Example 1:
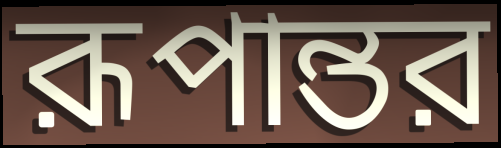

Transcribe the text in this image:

রূপান্তর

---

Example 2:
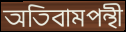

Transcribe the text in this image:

অতিবামপন্থী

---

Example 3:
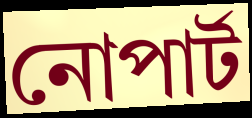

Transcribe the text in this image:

নোপার্ট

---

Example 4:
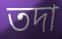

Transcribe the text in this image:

তদা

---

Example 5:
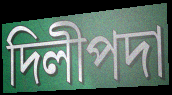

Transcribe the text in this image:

দিলীপদা